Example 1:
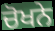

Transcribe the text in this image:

ਚੋਖਨੇ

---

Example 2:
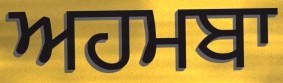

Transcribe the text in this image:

ਅਹਮਬਾ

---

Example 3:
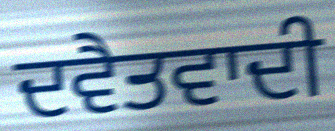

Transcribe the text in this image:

ਦਵੈਤਵਾਦੀ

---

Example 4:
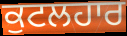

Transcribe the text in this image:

ਕੁਟਲਹਾਰ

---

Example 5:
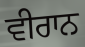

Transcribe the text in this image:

ਵੀਰਾਨ